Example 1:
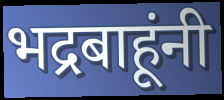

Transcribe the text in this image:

भद्रबाहूंनी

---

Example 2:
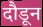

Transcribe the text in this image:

दौडून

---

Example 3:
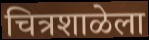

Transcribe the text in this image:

चित्रशाळेला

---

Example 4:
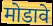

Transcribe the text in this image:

मोडावे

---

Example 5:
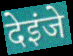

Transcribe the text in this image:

देइंजे